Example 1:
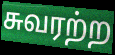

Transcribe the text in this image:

சுவரற்ற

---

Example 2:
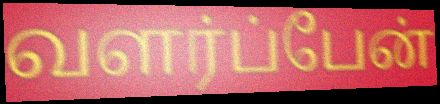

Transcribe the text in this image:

வளர்ப்பேன்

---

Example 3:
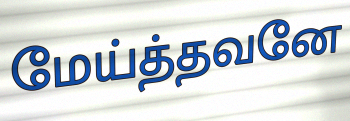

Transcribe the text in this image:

மேய்த்தவனே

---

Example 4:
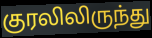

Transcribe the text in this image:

குரலிலிருந்து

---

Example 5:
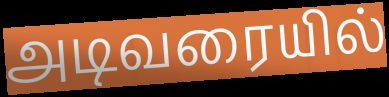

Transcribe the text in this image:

அடிவரையில்